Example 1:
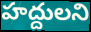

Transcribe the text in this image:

హద్దులని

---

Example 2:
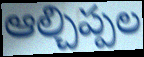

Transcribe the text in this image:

ఆల్చిప్పల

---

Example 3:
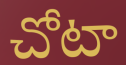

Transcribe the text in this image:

చోటా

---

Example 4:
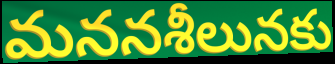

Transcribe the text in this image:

మననశీలునకు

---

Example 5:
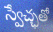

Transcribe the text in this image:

స్వేచ్ఛతో